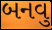
બનવુ